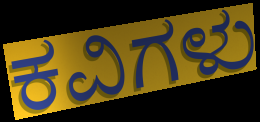
ಕವಿಗಳು